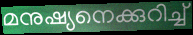
മനുഷ്യനെക്കുറിച്ച്